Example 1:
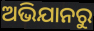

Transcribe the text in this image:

ଅଭିଯାନରୁ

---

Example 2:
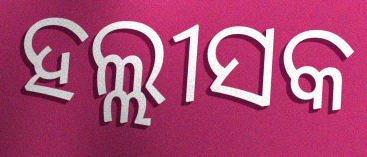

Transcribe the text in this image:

ହଲ୍ଲୀସକ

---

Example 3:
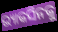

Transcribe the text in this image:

ଭ୍ୟାକସିନକୁ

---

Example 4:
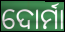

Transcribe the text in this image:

ଦୋର୍ମା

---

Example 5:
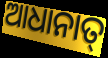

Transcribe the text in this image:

ଆଧାନାତ୍